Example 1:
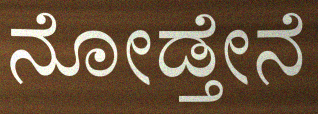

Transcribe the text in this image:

ನೋಡ್ತೇನೆ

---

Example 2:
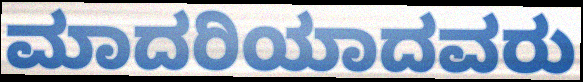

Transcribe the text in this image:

ಮಾದರಿಯಾದವರು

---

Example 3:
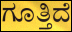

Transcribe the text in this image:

ಗೂತ್ತಿದೆ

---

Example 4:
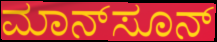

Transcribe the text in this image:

ಮಾನ್‌ಸೂನ್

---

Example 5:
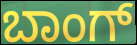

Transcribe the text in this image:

ಬಾಂಗ್